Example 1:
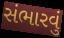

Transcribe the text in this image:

સંભારવું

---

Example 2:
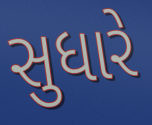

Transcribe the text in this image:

સુધારે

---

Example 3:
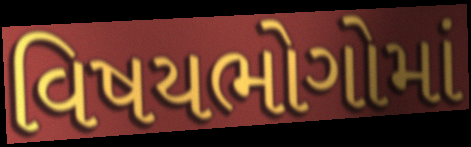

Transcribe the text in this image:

વિષયભોગોમાં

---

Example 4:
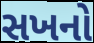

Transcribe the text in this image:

સખનો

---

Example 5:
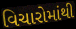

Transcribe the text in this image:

વિચારોમાંથી